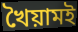
খৈয়ামই